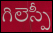
గిలెస్పీ